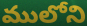
ములోని